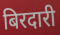
बिरदारी